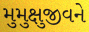
મુમુક્ષુજીવને